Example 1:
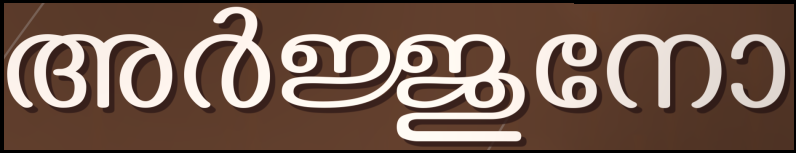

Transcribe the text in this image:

അർജ്ജുനോ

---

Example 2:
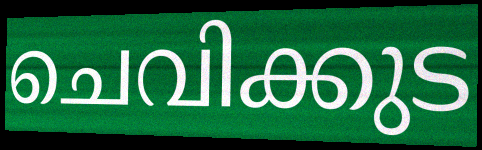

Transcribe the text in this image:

ചെവിക്കുട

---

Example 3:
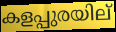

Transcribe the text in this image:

കളപ്പുരയില്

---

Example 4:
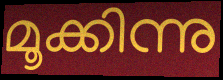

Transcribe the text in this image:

മൂക്കിന്നു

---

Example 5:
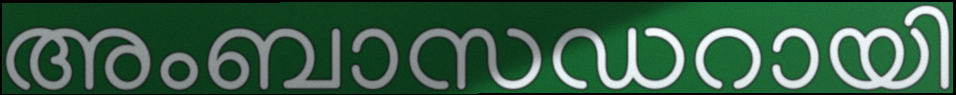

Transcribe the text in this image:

അംബാസഡറായി